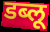
डब्लू